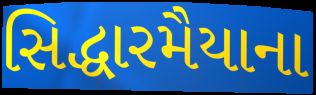
સિદ્ધારમૈયાના